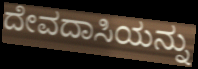
ದೇವದಾಸಿಯನ್ನು